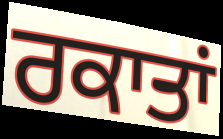
ਰਕਾਤਾਂ